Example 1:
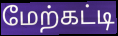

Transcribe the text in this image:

மேற்கட்டி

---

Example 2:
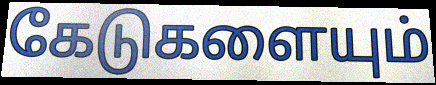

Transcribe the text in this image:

கேடுகளையும்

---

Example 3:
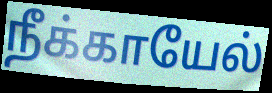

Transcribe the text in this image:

நீக்காயேல்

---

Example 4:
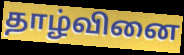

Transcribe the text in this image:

தாழ்வினை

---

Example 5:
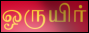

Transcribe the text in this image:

ஓருயிர்